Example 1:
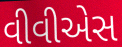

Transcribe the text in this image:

વીવીએસ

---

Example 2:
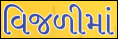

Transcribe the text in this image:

વિજળીમાં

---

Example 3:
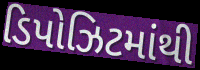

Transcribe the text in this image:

ડિપોઝિટમાંથી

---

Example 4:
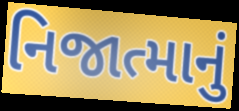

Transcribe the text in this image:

નિજાત્માનું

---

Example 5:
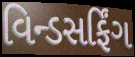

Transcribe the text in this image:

વિન્ડસર્ફિંગ